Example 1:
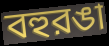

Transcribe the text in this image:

বহুরঙা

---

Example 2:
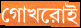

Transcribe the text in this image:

গোখরোই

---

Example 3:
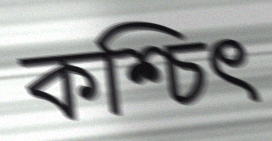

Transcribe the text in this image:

কশ্চিৎ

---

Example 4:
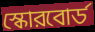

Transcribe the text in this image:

স্কোরবোর্ড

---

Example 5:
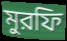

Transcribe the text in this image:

মুরফি